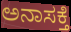
ಅನಾಸಕ್ತೆ